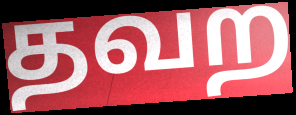
தவற